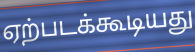
ஏற்படக்கூடியது